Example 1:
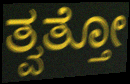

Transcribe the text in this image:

ತ್ವತ್ತೋ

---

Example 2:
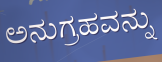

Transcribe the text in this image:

ಅನುಗ್ರಹವನ್ನು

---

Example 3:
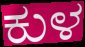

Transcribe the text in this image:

ಕುಳ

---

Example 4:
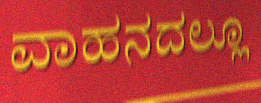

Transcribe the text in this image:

ವಾಹನದಲ್ಲೂ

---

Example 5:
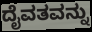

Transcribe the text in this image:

ದೈವತವನ್ನು